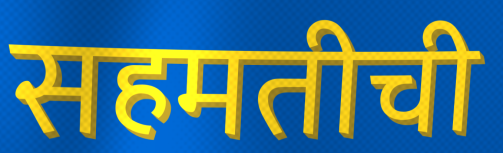
सहमतीची